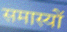
समास्यों